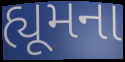
હ્યૂમના